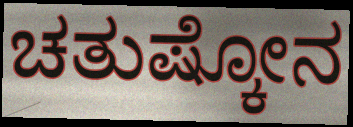
ಚತುಷ್ಕೋನ